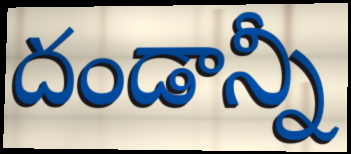
దండాన్నీ